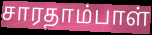
சாரதாம்பாள்